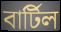
বার্টিল